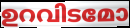
ഉറവിടമോ